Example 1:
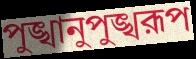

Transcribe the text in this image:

পুঙ্খানুপুঙ্খরূপ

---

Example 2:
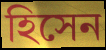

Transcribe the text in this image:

হিসেন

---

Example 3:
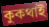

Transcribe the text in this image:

কুকথাই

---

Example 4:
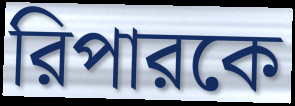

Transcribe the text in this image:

রিপারকে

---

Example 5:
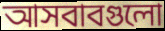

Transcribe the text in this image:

আসবাবগুলো